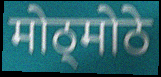
मोठ्मोठे